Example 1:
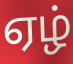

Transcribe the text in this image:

ஏழ்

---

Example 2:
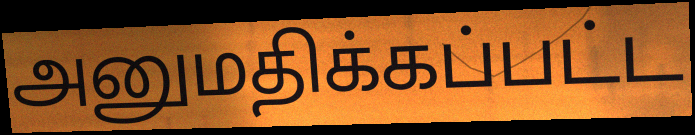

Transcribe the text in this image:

அனுமதிக்கப்பட்ட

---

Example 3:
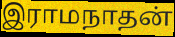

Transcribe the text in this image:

இராமநாதன்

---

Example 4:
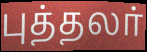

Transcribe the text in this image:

புத்தலர்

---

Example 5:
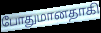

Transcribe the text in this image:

போதுமானதாகி